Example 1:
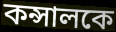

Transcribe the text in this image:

কন্সালকে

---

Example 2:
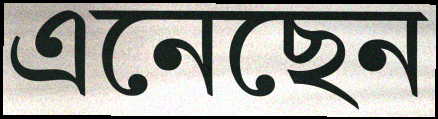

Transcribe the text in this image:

এনেছেন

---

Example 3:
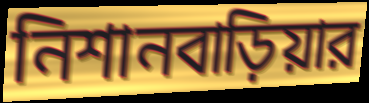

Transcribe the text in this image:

নিশানবাড়িয়ার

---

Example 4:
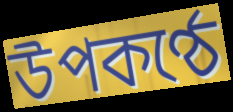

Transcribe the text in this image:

উপকণ্ঠে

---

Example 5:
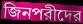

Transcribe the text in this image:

জিনপরীদের